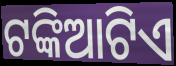
ଟଙ୍କିଆଟିଏ